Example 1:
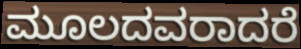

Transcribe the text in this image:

ಮೂಲದವರಾದರೆ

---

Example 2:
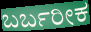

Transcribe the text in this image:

ಬರ್ಬರೀಕ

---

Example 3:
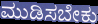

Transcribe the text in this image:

ಮುಡಿಸಬೇಕು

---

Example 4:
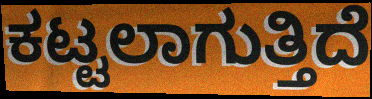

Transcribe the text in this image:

ಕಟ್ಟಲಾಗುತ್ತಿದೆ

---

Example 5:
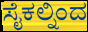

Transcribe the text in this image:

ಸೈಕಲ್ನಿಂದ